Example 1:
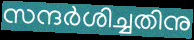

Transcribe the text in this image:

സന്ദർശിച്ചതിനു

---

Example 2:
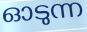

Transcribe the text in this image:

ഓടുന്ന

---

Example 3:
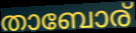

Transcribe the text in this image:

താബോര്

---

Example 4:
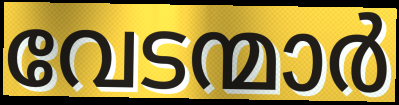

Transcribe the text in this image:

വേടന്മാർ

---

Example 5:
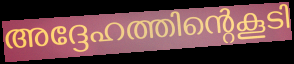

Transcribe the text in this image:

അദ്ദേഹത്തിന്റെകൂടി